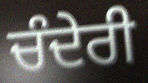
ਚੰਦੇਰੀ